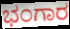
ಭಂಗಾರ